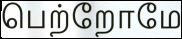
பெற்றோமே